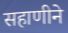
सहाणीने